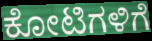
ಕೋಟಿಗಳಿಗೆ